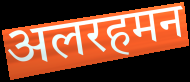
अलरहमन